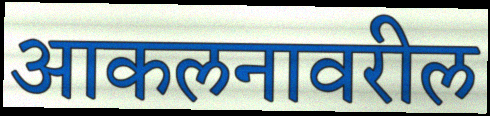
आकलनावरील